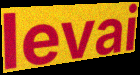
levai